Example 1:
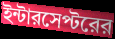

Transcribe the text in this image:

ইন্টারসেপ্টরের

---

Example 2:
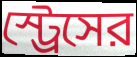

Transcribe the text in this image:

স্ট্রেসের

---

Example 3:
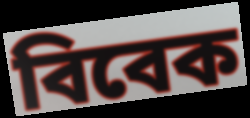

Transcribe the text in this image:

বিবেক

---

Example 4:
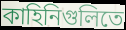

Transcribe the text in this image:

কাহিনিগুলিতে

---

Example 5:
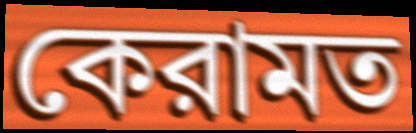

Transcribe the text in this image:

কেরামত